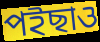
পইছাও